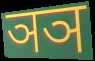
ञञ